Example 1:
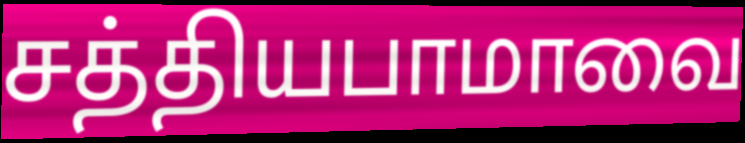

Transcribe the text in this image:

சத்தியபாமாவை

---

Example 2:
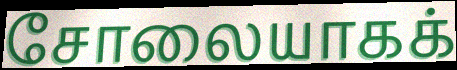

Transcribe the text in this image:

சோலையாகக்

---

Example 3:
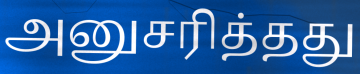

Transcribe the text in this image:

அனுசரித்தது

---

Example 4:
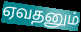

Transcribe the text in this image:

ஏவதனும்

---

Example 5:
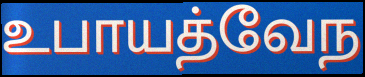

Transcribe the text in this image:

உபாயத்வேந